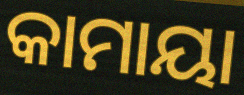
କାମାୟା